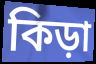
কিড়া